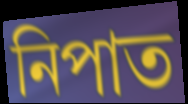
নিপাত